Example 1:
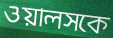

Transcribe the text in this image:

ওয়ালসকে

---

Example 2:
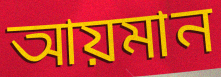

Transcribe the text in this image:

আয়মান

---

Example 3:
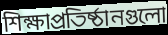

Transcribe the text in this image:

শিক্ষাপ্রতিষ্ঠানগুলো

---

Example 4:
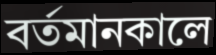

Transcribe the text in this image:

বর্তমানকালে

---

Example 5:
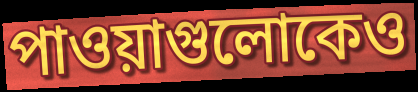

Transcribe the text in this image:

পাওয়াগুলোকেও